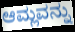
ಆಮ್ಲವನ್ನು